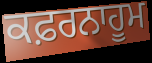
ਕਫ਼ਰਨਾਹੂਮ